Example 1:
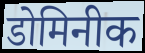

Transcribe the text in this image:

डोमिनीक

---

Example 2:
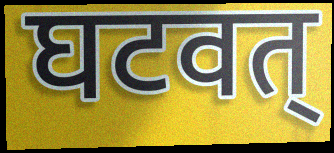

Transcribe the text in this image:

घटवत्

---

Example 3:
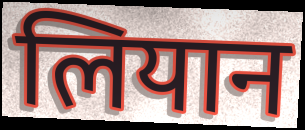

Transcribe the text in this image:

लियान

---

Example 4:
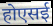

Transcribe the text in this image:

होएसई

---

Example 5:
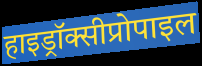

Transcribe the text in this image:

हाइड्रॉक्सीप्रोपाइल